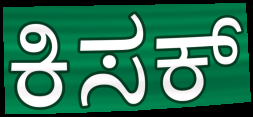
ಕಿಸಕ್